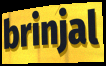
brinjal